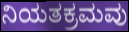
ನಿಯತಕ್ರಮವು